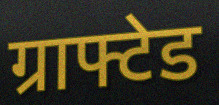
ग्राफ्टेड